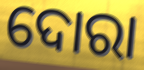
ଦୋରା